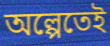
অল্পেতেই